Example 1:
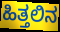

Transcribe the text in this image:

ಹಿತ್ತಲಿನ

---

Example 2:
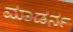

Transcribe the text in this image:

ಮಾಡರ್ನ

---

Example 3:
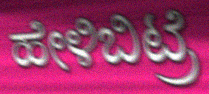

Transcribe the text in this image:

ಹೇಳಿಬಿಟ್ರೆ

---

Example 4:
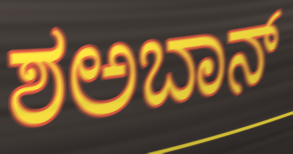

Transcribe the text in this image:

ಶಅಬಾನ್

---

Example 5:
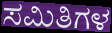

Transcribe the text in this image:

ಸಮಿತಿಗಳ